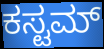
ಕಸ್ಟಮ್